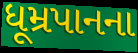
ધૂમ્રપાનના